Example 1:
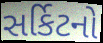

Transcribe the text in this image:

સર્કિટનો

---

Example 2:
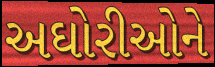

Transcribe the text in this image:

અઘોરીઓને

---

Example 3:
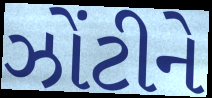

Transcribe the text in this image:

ઝોંટીને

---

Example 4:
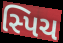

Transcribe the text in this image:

સ્પિચ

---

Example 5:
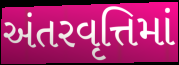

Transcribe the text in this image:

અંતરવૃત્તિમાં